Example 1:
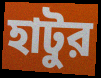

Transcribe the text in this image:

হাটুর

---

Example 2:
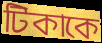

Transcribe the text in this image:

টিকাকে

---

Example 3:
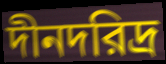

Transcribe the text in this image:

দীনদরিদ্র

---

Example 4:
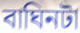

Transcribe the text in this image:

বাঘিনটা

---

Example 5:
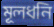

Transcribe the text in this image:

মূলধনি